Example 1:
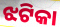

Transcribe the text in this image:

ଝଟିକା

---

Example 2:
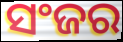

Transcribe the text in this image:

ସଂଜର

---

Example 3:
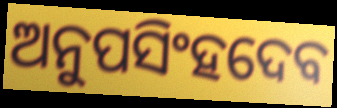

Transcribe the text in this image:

ଅନୁପସିଂହଦେବ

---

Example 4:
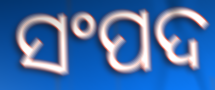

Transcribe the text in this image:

ସଂପଦ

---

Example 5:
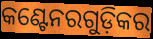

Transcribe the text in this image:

କଣ୍ଟେନରଗୁଡ଼ିକର